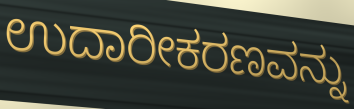
ಉದಾರೀಕರಣವನ್ನು